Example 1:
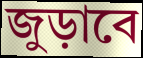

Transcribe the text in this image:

জুড়াবে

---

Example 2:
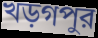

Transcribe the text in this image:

খড়গপুর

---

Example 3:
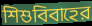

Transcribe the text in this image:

শিশুবিবাহের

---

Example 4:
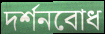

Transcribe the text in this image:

দর্শনবোধ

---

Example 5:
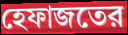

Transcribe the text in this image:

হেফাজতের